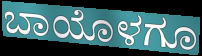
ಬಾಯೊಳಗೂ